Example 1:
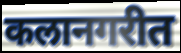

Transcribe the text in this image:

कलानगरीत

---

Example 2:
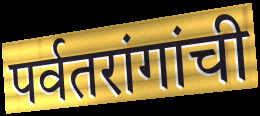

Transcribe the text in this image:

पर्वतरांगांची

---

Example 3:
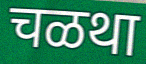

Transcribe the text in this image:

चळथा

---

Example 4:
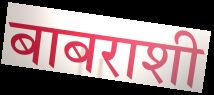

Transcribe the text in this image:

बाबराशी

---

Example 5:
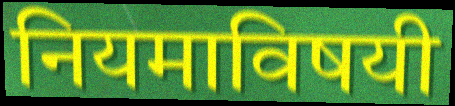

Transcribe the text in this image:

नियमाविषयी